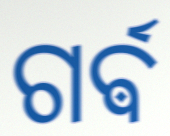
ଗର୍ଵ